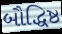
બૌદ્ધિષ્ઠ